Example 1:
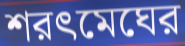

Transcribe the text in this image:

শরৎমেঘের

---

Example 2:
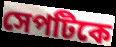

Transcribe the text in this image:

সেপটিকে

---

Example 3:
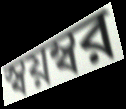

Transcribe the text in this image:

স্বয়ম্বর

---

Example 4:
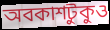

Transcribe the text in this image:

অবকাশটুকুও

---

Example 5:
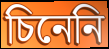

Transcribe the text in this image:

চিনেনি